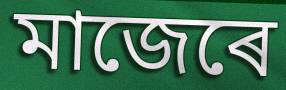
মাজেৰে